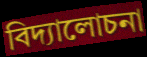
বিদ্যালোচনা